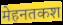
मेहनतकश